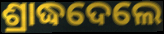
ଶ୍ରାଦ୍ଧଦେଲେ